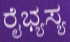
ರೈಭ್ಯಸ್ಯ